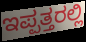
ಇಪ್ಪತ್ತರಲ್ಲಿ